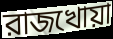
রাজখোয়া